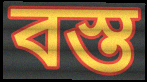
বস্ত